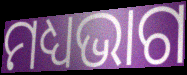
ମଧ୍ୟଭାଗ